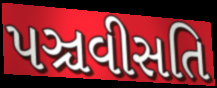
પઞ્ચવીસતિ